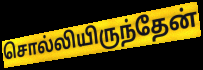
சொல்லியிருந்தேன்